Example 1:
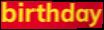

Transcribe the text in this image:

birthday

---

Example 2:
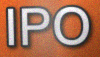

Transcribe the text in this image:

IPO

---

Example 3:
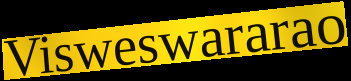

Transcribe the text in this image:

Visweswararao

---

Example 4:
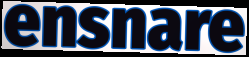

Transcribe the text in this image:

ensnare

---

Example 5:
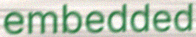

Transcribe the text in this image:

embedded